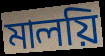
মালয়ি